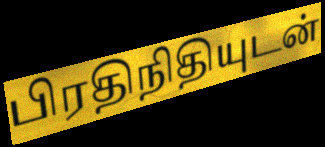
பிரதிநிதியுடன்